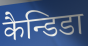
कैन्डिडा